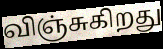
விஞ்சுகிறது